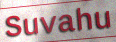
Suvahu